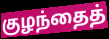
குழந்தைத்